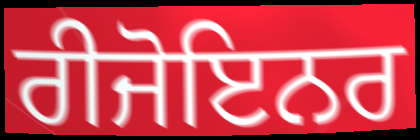
ਰੀਜੋਇਨਰ